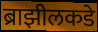
ब्राझीलकडे